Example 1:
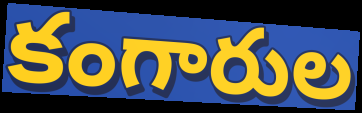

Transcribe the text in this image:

కంగారుల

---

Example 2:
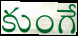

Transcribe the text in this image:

కుంగే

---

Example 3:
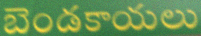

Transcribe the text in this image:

బెండకాయలు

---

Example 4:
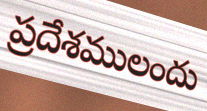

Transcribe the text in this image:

ప్రదేశములందు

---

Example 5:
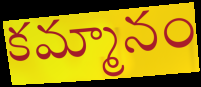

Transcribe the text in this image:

కమ్మానం